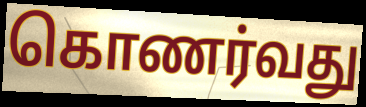
கொணர்வது